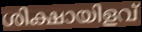
ശിക്ഷായിളവ്